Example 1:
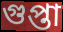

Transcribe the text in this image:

গুপ্তা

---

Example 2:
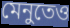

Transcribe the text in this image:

মেনুতেও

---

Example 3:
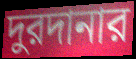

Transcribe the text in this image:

দুরদানার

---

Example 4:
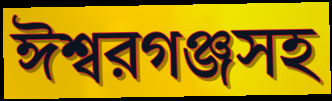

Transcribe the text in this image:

ঈশ্বরগঞ্জসহ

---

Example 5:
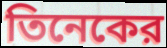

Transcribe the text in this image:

তিনেকের